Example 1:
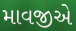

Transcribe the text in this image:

માવજીએ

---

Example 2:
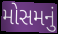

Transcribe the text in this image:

મોસમનું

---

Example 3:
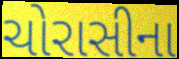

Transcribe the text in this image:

ચોરાસીના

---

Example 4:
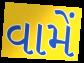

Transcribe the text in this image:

વામેં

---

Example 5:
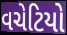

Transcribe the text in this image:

વચેટિયો